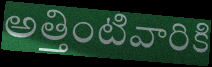
అత్తింటివారికి